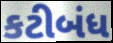
કટીબંધ